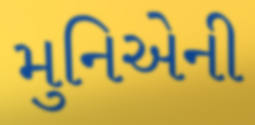
મુનિએની